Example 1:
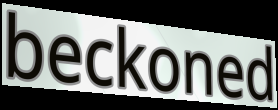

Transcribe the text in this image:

beckoned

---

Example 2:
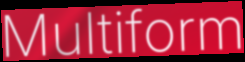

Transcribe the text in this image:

Multiform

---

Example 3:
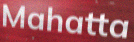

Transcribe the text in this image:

Mahatta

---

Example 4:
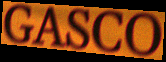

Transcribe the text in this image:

GASCO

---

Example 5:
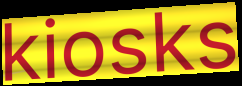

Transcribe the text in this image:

kiosks